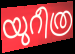
യുറീത്ര